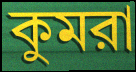
কুমরা